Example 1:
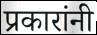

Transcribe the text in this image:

प्रकारांनी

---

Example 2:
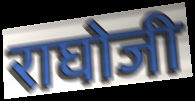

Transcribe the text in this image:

राघोजी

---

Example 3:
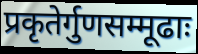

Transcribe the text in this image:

प्रकृतेर्गुणसम्मूढाः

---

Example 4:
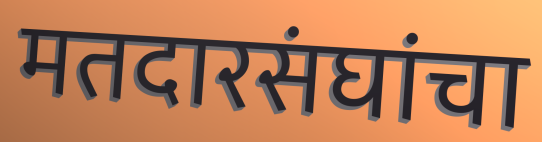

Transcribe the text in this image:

मतदारसंघांचा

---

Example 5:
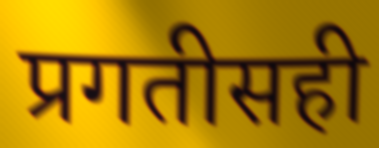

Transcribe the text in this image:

प्रगतीसही